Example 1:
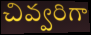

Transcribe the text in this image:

చివ్వరిగా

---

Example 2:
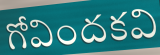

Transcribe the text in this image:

గోవిందకవి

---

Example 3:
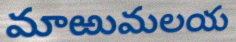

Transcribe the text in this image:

మాఱుమలయ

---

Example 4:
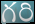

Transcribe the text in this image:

గరి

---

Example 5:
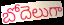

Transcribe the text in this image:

బోదెలుగా